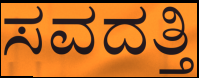
ಸವದತ್ತಿ